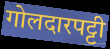
गोलदारपट्टी